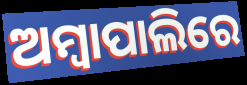
ଅମ୍ବାପାଲିରେ